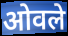
ओवले